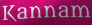
Kannam